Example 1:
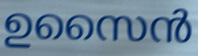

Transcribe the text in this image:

ഉസൈൻ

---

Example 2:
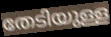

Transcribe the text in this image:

തേടിയുള്ള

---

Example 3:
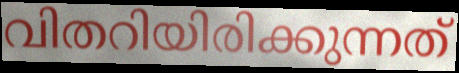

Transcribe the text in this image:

വിതറിയിരിക്കുന്നത്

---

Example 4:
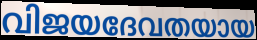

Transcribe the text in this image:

വിജയദേവതയായ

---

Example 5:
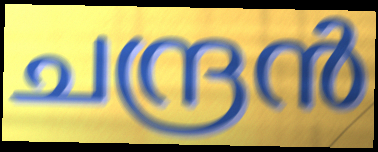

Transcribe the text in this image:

ചന്ദ്രൻ